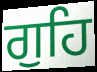
ਗੁਹਿ